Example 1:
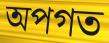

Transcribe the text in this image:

অপগত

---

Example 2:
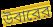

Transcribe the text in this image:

উবারের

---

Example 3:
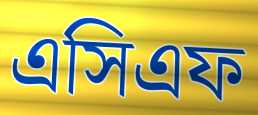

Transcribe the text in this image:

এসিএফ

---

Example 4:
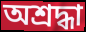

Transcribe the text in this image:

অশ্রদ্ধা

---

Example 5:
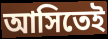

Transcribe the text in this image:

আসিতেই